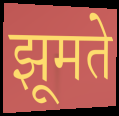
झूमते